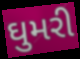
ઘુમરી